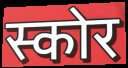
स्कोर